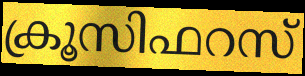
ക്രൂസിഫറസ്